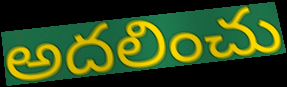
అదలించు